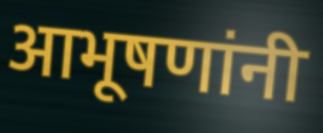
आभूषणांनी